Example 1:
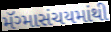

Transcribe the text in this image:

મૅગ્માસંચયમાંથી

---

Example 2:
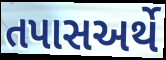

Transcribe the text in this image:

તપાસઅર્થે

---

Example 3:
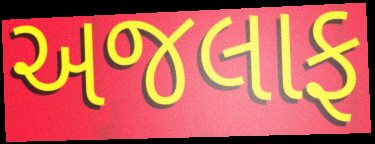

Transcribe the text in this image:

અજલાફ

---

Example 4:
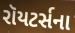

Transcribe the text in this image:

રૉયટર્સના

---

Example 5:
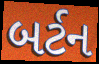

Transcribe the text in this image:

બર્ટન